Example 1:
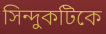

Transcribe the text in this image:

সিন্দুকটিকে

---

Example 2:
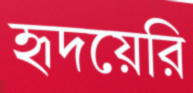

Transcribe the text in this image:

হৃদয়েরি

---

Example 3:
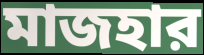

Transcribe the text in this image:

মাজহার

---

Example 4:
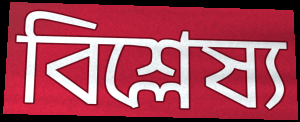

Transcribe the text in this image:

বিশ্লেষ্য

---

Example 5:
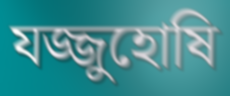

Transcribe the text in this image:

যজ্জুহোষি